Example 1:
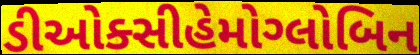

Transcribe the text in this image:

ડીઓક્સીહેમોગ્લોબિન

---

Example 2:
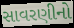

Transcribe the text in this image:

સાવરણીનો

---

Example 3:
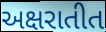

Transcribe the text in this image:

અક્ષરાતીત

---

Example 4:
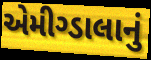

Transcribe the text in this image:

એમીગ્ડાલાનું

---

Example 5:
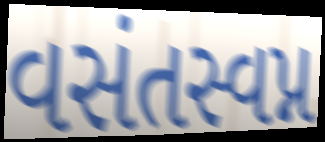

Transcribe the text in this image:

વસંતસ્વપ્ન